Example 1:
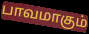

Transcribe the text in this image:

பாவமாகும்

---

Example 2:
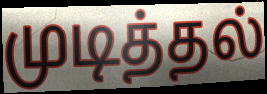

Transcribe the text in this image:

முடித்தல்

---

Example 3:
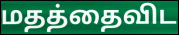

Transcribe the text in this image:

மதத்தைவிட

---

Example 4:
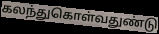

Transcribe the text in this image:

கலந்துகொள்வதுண்டு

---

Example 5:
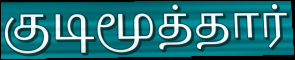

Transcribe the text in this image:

குடிமூத்தார்